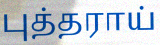
புத்தராய்